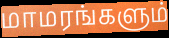
மாமரங்களும்